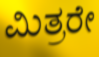
ಮಿತ್ರರೇ